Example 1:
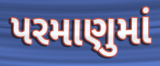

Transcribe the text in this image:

પરમાણુમાં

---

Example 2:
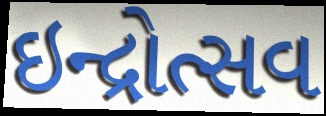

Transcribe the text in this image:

ઇન્દ્રોત્સવ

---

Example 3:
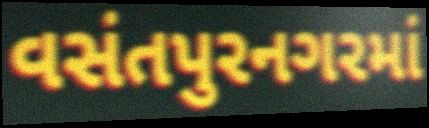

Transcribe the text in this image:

વસંતપુરનગરમાં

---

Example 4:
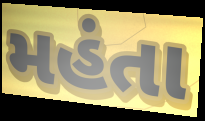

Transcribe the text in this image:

મહંતા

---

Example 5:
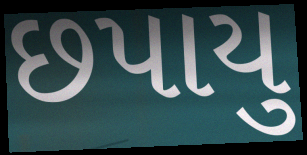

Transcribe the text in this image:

છપાયુ